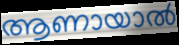
ആണായാൽ